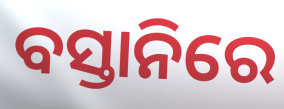
ବସ୍ତାନିରେ